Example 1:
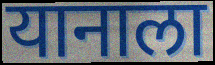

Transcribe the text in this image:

यानाला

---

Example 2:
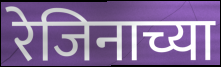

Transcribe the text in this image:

रेजिनाच्या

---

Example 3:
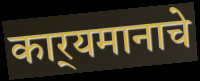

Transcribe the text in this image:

कार्यमानाचे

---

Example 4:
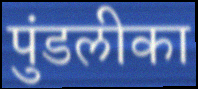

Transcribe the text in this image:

पुंडलीका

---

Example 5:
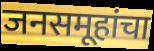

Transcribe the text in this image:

जनसमूहांचा